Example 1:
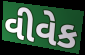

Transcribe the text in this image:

વીવેક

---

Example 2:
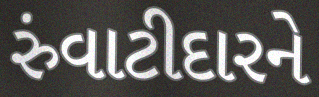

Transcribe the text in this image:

રુંવાટીદારને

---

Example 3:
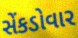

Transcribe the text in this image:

સેંકડોવાર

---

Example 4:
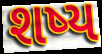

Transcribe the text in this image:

શષ્ય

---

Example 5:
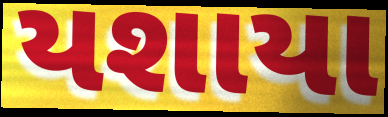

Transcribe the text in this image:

યશાયા